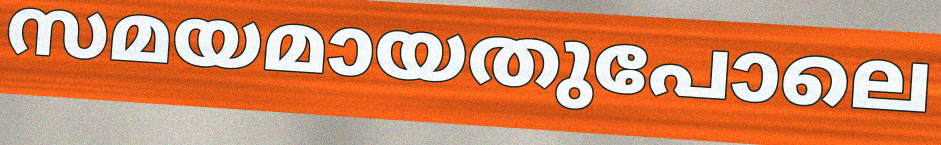
സമയമായതുപോലെ